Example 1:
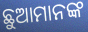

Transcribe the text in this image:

ଛୁଆମାନଙ୍କ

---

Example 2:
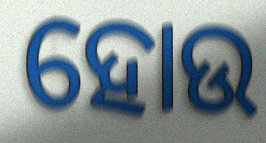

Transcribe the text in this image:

ହୋଉ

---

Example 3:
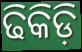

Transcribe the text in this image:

ଢିକିଡ଼ି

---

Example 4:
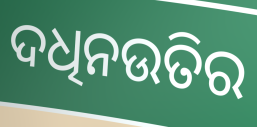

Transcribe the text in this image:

ଦଧିନଉତିର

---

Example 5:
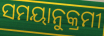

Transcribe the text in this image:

ସମୟାନୁକ୍ରମୀ